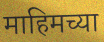
माहिमच्या